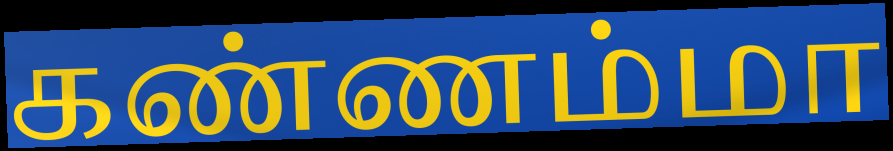
கண்ணம்மா